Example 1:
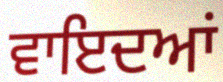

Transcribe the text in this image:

ਵਾਇਦਆਂ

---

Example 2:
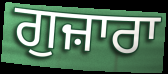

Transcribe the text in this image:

ਗੁਜ਼ਾਰਾ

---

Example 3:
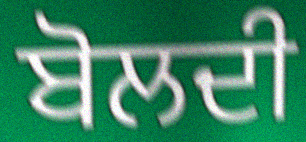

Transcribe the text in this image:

ਬੋਲਦੀ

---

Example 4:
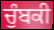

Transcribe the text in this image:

ਚੁੰਬਕੀ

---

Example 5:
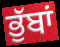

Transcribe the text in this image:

ਭੁੱਬਾਂ